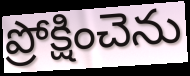
ప్రోక్షించెను